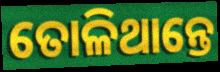
ତୋଳିଥାନ୍ତେ